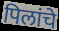
पिलांचे